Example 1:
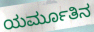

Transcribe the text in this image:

ಯರ್ಮೂತಿನ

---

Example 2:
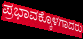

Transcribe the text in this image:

ಪ್ರಭಾವಕ್ಕೊಳಗಾದರು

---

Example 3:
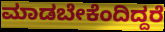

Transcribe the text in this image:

ಮಾಡಬೇಕೆಂದಿದ್ದರೆ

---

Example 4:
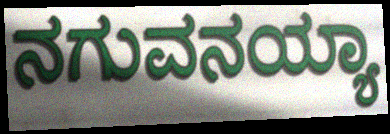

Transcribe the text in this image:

ನಗುವನಯ್ಯಾ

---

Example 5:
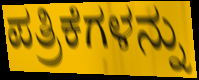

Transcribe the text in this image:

ಪತ್ರಿಕೆಗಳನ್ನು